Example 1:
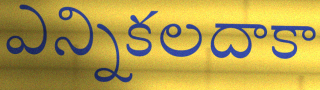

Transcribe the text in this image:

ఎన్నికలదాకా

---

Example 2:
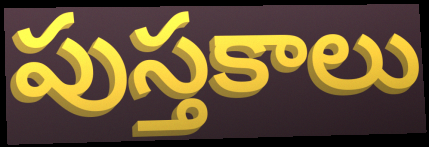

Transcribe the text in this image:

పుస్తకాలు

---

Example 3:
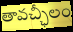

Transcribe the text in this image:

తావచ్ఛీలం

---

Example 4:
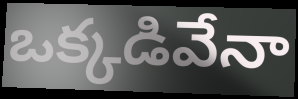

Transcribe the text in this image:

ఒక్కడివేనా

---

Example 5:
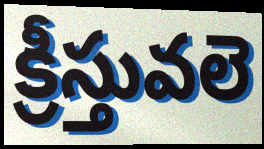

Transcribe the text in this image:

క్రీస్తువలె